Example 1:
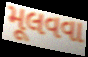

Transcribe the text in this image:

મૂલવવા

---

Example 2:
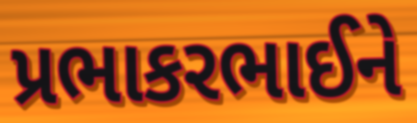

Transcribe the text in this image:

પ્રભાકરભાઈને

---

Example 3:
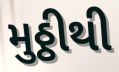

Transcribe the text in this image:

મુઠ્ઠીથી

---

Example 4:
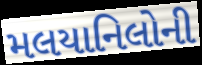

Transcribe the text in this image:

મલયાનિલોની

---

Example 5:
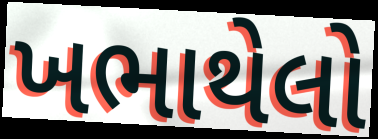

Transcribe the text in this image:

ખભાથેલો